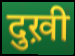
दुख़ी